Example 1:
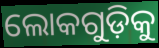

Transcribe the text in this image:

ଲୋକଗୁଡ଼ିକୁ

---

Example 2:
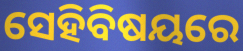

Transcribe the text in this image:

ସେହିବିଷୟରେ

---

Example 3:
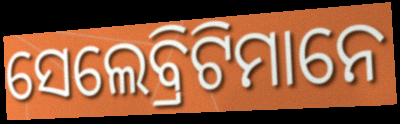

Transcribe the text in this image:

ସେଲେବ୍ରିଟିମାନେ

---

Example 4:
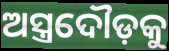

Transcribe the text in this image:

ଅସ୍ତ୍ରଦୌଡ଼କୁ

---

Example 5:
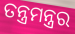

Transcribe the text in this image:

ତନ୍ତ୍ରମନ୍ତ୍ରର